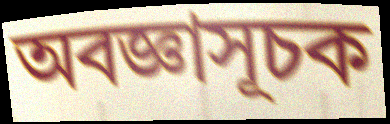
অবজ্ঞাসূচক